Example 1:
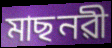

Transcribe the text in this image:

মাছনৱী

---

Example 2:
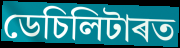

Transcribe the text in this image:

ডেচিলিটাৰত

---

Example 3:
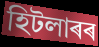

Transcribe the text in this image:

হিটলাৰৰ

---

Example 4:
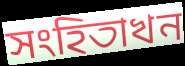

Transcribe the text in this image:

সংহিতাখন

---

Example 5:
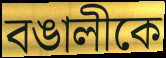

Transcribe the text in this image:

বঙালীকে